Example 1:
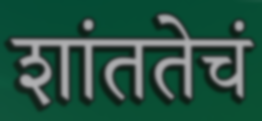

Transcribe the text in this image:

शांततेचं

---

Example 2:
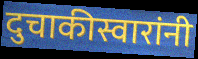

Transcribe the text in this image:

दुचाकीस्वारांनी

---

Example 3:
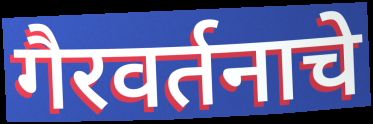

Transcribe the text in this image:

गैरवर्तनाचे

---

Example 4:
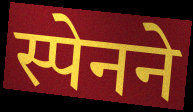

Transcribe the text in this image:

स्पेनने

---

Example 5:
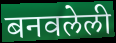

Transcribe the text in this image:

बनवलेली